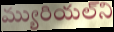
మ్యురియల్‌ని